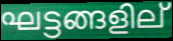
ഘട്ടങ്ങളില്